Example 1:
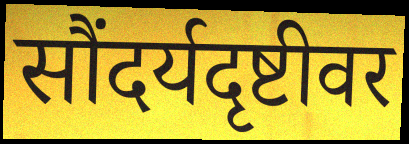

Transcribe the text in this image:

सौंदर्यदृष्टीवर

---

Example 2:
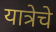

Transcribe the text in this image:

यात्रेचे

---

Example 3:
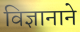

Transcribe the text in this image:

विज्ञानाने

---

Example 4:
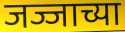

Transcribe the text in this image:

जज्जाच्या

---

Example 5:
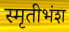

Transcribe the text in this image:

स्मृतीभंश